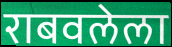
राबवलेला